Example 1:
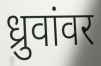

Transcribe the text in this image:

ध्रुवांवर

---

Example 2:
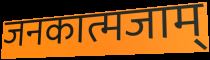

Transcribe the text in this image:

जनकात्मजाम्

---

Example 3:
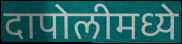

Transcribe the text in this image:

दापोलीमध्ये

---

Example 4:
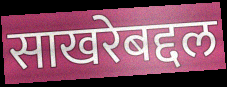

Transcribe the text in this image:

साखरेबद्दल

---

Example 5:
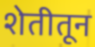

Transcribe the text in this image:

शेतीतून